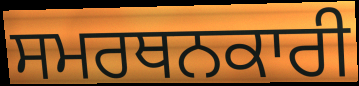
ਸਮਰਥਨਕਾਰੀ